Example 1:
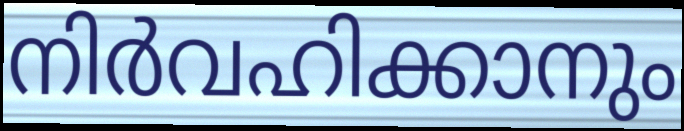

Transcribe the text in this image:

നിർവഹിക്കാനും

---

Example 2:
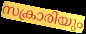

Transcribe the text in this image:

സക്രാരിയും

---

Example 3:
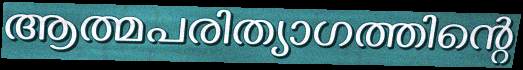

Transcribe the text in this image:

ആത്മപരിത്യാഗത്തിന്റെ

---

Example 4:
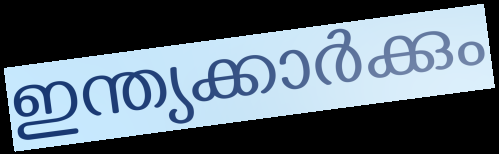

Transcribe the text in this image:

ഇന്ത്യക്കാർക്കും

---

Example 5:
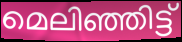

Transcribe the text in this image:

മെലിഞ്ഞിട്ട്